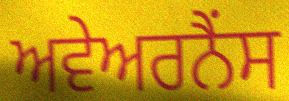
ਅਵੇਅਰਨੈਂਸ